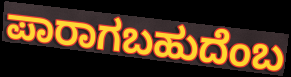
ಪಾರಾಗಬಹುದೆಂಬ